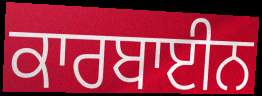
ਕਾਰਬਾਈਨ